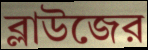
ব্লাউজের